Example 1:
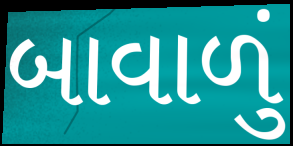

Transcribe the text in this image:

બાવાળું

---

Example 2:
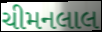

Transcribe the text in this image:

ચીમનલાલ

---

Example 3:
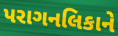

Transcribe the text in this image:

પરાગનલિકાને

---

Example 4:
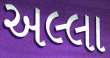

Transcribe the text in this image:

અલ્લા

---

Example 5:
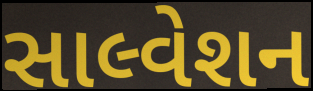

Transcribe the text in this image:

સાલ્વેશન